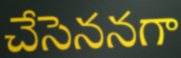
చేసెననగా